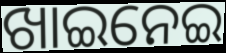
ଖାଇନେଇ